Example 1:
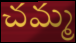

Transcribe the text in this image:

చమ్మ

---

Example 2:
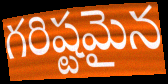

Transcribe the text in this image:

గరిష్టమైన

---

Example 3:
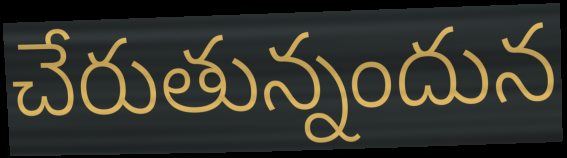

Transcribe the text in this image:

చేరుతున్నందున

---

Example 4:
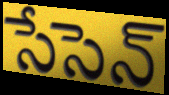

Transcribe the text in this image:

సేసెన్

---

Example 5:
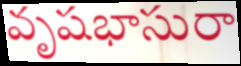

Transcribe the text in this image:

వృషభాసురా